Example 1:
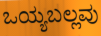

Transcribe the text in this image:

ಒಯ್ಯಬಲ್ಲವು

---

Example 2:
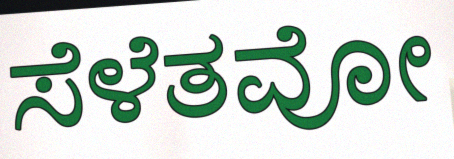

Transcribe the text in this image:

ಸೆಳೆತವೋ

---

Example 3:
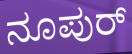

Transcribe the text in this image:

ನೂಪುರ್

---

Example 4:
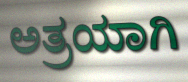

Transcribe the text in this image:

ಅತ್ರಯಾಗಿ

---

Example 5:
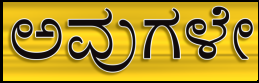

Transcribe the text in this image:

ಅವುಗಳೇ